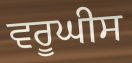
ਵਰੂਘੀਸ